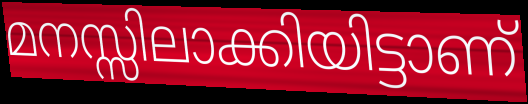
മനസ്സിലാക്കിയിട്ടാണ്